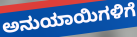
ಅನುಯಾಯಿಗಳಿಗೆ